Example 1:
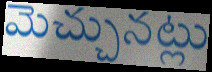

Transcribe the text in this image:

మెచ్చునట్లు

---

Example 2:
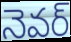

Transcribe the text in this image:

నెవర్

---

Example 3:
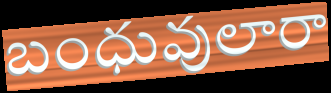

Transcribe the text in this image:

బంధువులారా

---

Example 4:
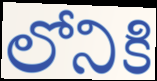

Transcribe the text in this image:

లోనికి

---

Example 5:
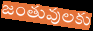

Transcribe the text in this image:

జంతువులకు